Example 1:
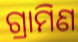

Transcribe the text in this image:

ଗ୍ରାମିଣ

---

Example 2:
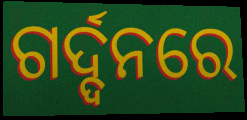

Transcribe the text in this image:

ଗର୍ଦ୍ଦନରେ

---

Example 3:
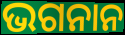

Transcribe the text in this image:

ଭଗନାନ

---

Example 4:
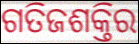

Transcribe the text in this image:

ଗତିଜଶକ୍ତିର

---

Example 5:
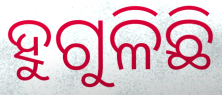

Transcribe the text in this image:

ହୁଗୁଳିଛି